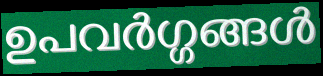
ഉപവർഗ്ഗങ്ങൾ